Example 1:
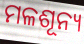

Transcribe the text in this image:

ମଳଶୂନ୍ୟ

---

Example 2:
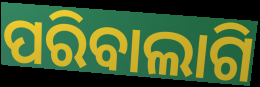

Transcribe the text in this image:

ପରିବାଲାଗି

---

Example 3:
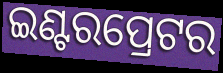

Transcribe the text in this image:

ଇଣ୍ଟରପ୍ରେଟର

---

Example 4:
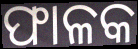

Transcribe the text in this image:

ଫାଳକ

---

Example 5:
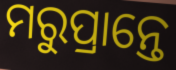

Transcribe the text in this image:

ମରୁପ୍ରାନ୍ତେ